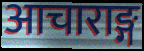
आचाराङ्ग